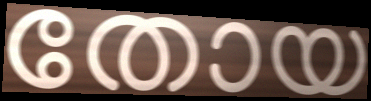
തോയ